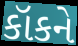
કૉકને